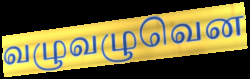
வழுவழுவென